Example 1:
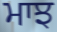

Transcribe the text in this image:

ਮਾਝ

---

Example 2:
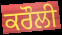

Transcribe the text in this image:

ਕਰੌਲੀ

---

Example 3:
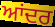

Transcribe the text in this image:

ਆਂਦਰ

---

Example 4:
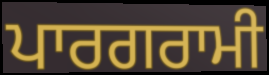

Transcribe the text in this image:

ਪਾਰਗਰਾਮੀ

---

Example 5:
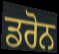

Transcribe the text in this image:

ਡਰੋਨ